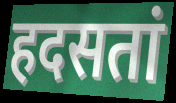
हदसतां